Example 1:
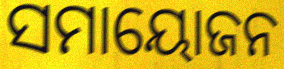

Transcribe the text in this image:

ସମାୟୋଜନ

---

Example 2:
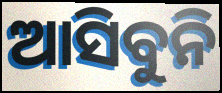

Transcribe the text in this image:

ଆସିବୁନି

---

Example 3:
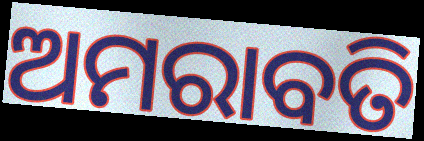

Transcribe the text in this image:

ଅମରାବତି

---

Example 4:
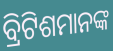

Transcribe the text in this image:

ବ୍ରିଟିଶମାନଙ୍କ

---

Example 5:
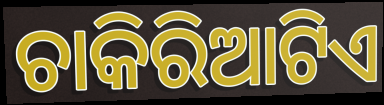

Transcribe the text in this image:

ଚାକିରିଆଟିଏ